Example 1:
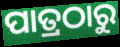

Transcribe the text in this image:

ପାତ୍ରଠାରୁ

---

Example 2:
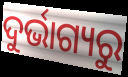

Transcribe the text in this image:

ଦୁର୍ଭାଗ୍ୟରୁ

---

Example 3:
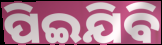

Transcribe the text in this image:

ପିଇଯିବି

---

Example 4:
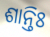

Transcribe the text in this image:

ଶାନ୍ତିଃ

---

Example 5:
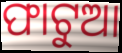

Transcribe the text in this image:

ଫାଟୁଆ